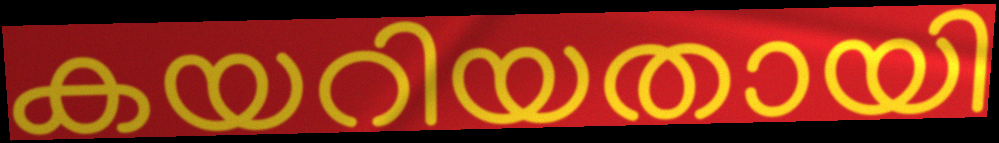
കയറിയതായി